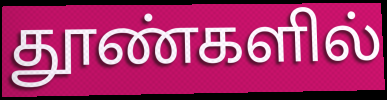
தூண்களில்